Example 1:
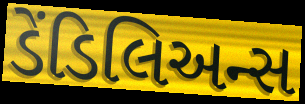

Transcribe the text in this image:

ડેંડિલિઅન્સ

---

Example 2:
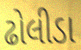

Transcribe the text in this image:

ઢોલીડા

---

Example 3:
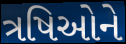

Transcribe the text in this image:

ત્રષિઓને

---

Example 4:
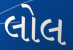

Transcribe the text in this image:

લોલ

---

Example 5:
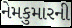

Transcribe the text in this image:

નેમકુમારની